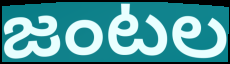
జంటల